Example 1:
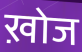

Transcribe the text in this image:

ख़ोज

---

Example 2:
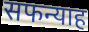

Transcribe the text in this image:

सफन्याह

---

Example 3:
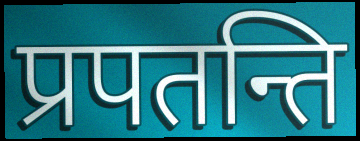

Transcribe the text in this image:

प्रपतन्ति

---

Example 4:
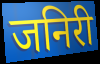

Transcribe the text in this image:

जनिरी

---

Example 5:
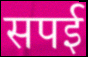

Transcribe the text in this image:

सपई